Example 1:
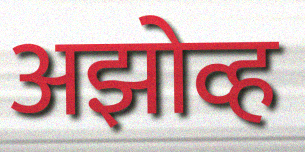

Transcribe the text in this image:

अझोव्ह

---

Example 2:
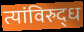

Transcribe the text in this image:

त्यांविरुद्ध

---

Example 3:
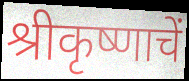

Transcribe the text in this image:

श्रीकृष्णाचें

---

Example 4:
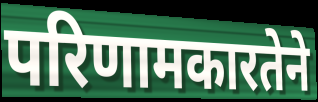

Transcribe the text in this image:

परिणामकारतेने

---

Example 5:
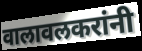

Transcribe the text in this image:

वालावलकरांनी